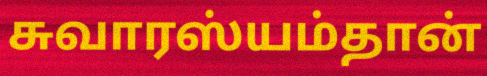
சுவாரஸ்யம்தான்